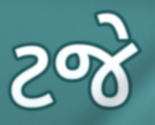
ટજે